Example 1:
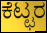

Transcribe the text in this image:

ಕೆಟ್ಟರ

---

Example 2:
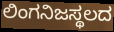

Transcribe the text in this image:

ಲಿಂಗನಿಜಸ್ಥಲದ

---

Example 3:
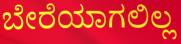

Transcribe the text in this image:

ಬೇರೆಯಾಗಲಿಲ್ಲ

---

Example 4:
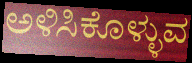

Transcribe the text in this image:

ಅಳಿಸಿಕೊಳ್ಳುವ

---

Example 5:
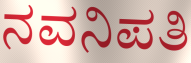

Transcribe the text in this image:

ನವನಿಪತಿ